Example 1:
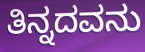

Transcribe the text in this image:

ತಿನ್ನದವನು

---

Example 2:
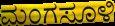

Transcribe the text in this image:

ಮಂಗಸೂಳಿ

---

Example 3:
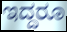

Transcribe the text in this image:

ಇದ್ದರೂ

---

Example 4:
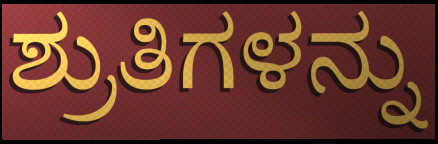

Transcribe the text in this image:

ಶ್ರುತಿಗಳನ್ನು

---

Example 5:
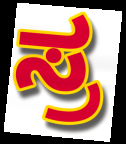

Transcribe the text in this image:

ಸ್ರ